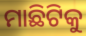
ମାଛିଟିକୁ